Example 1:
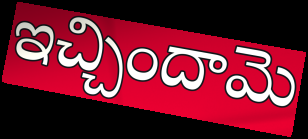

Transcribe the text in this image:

ఇచ్చిందామె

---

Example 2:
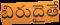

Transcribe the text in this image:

బిరుదైతే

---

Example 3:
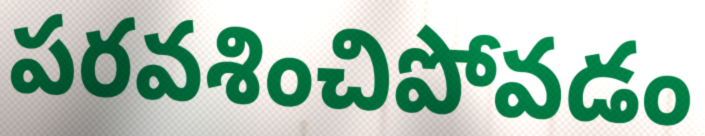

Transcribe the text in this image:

పరవశించిపోవడం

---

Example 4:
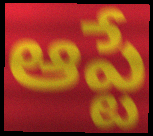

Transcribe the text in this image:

ఆప్టే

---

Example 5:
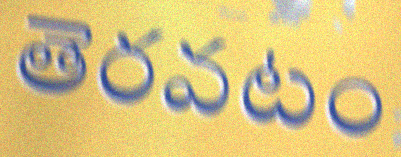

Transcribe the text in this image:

తెరవటం